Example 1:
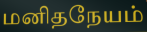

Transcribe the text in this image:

மனிதநேயம்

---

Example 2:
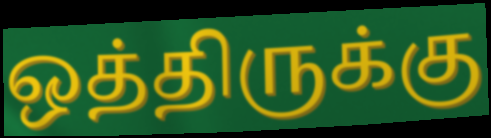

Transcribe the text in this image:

ஒத்திருக்கு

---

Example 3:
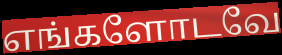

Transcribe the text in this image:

எங்களோடவே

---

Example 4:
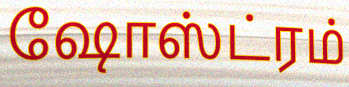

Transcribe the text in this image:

ஷோஸ்ட்ரம்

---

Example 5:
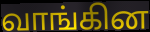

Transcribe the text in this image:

வாங்கின